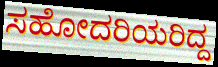
ಸಹೋದರಿಯರಿದ್ದ